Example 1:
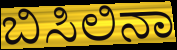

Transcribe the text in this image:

ಬಿಸಿಲಿನಾ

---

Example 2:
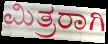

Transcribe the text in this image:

ಮಿತ್ರರಾಗಿ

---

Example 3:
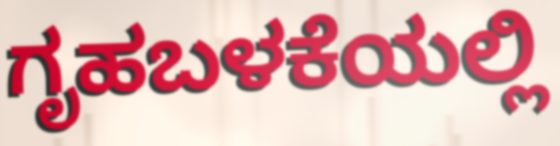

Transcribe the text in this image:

ಗೃಹಬಳಕೆಯಲ್ಲಿ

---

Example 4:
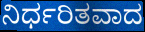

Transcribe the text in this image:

ನಿರ್ಧರಿತವಾದ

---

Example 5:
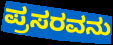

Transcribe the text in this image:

ಪ್ರಸರವನು